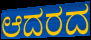
ಆದರದ